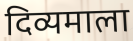
दिव्यमाला